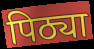
पिठ्या